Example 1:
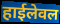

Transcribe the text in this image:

हाईलेवल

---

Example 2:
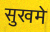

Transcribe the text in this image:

सुखमे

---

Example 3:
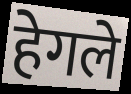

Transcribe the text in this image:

हेगले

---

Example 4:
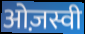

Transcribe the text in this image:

ओज़स्वी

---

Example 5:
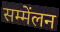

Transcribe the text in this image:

सम्मेंलन